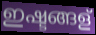
ഇഷ്ടങ്ങള്